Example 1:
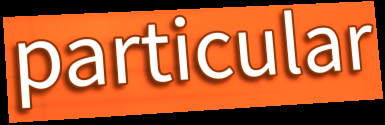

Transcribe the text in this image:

particular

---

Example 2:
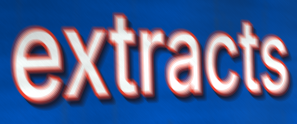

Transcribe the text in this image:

extracts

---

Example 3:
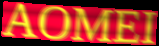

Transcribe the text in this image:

AOMEI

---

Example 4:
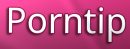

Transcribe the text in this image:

Porntip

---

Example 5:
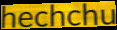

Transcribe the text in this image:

hechchu